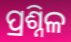
ପ୍ରଶ୍ନିଳ